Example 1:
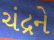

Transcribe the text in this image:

ચંદ્રને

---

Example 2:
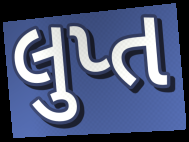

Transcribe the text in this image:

લુપ્ત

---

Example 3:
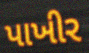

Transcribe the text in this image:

પાખીર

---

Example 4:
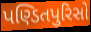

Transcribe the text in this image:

પણ્ડિતપુરિસો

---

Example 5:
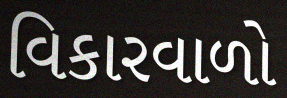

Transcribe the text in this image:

વિકારવાળો